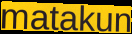
matakun